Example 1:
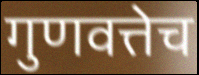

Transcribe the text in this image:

गुणवत्तेच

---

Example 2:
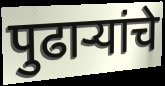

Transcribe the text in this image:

पुढाऱ्यांचे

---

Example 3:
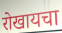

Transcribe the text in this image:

रोखायचा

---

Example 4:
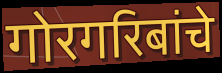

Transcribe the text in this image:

गोरगरिबांचे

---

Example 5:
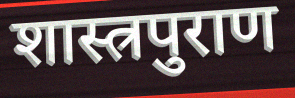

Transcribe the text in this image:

शास्त्रपुराण